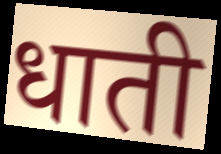
धाती